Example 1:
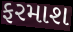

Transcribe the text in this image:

ફરમાશ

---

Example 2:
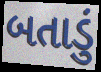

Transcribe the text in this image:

બતાડું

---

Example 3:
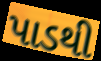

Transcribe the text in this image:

પાડથી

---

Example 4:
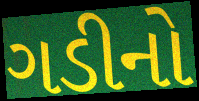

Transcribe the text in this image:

ગડીનો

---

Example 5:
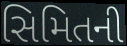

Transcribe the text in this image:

સિમિતની